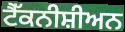
ਟੈੱਕਨੀਸ਼ੀਅਨ